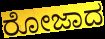
ರೋಜಾದ